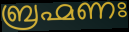
ബ്രഹ്മണഃ